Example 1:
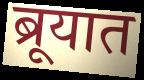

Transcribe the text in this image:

ब्रूयात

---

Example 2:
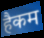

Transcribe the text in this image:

हैकम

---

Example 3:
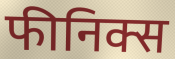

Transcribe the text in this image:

फीनिक्स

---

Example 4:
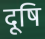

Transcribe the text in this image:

दूषि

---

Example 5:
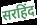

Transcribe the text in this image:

सरहिंद